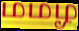
மமழ